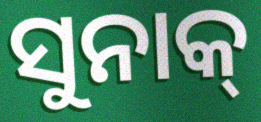
ସୁନାକ୍